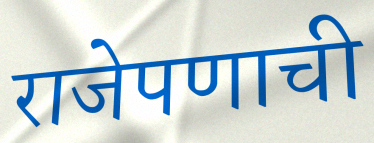
राजेपणाची